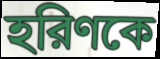
হরিণকে